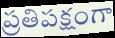
ప్రతిపక్షంగా